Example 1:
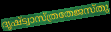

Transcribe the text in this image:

ദൃഷ്ട്വാസ്ത്രതേജസ്തു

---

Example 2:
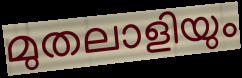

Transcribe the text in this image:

മുതലാളിയും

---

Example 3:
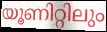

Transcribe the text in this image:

യൂണിറ്റിലും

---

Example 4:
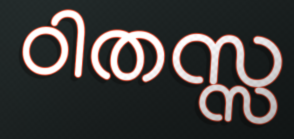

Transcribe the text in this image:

ഠിതസ്സ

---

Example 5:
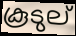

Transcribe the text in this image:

കൂടുല്